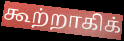
கூற்றாகிக்